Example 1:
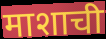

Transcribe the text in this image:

माशाची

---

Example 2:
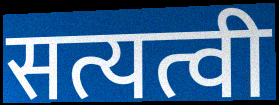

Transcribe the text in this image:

सत्यत्वी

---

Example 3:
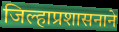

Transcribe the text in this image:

जिल्हाप्रशासनाने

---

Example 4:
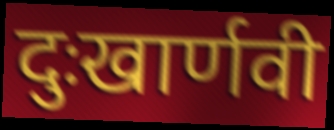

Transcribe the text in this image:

दुःखार्णवी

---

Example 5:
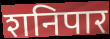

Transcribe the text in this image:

शनिपार